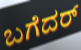
ಬಗೆದರ್